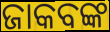
ଜାକବଙ୍କ